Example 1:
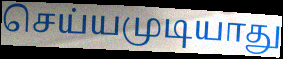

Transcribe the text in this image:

செய்யமுடியாது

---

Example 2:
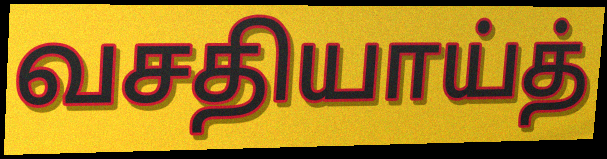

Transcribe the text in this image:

வசதியாய்த்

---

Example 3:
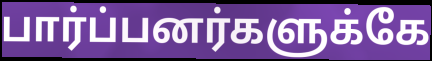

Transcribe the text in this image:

பார்ப்பனர்களுக்கே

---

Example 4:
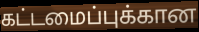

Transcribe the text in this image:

கட்டமைப்புக்கான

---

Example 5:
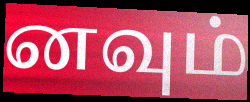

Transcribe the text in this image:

னவும்